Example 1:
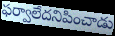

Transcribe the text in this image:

ఫర్వాలేదనిపించాడు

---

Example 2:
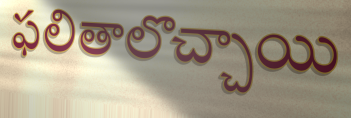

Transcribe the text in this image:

ఫలితాలొచ్చాయి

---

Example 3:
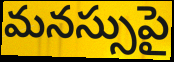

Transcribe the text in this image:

మనస్సుపై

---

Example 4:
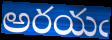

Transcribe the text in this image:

అరయఁ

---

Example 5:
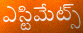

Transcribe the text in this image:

ఎస్టిమేట్స్